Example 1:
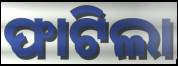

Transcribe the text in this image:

ଫାଟିଲା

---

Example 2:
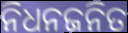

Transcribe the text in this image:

ନିଧନଜନିତ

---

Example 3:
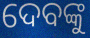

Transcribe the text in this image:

ଦେବଙ୍କୁ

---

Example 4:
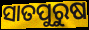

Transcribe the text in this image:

ସାତପୁରୁଷ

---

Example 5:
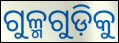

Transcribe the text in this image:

ଗୁଳ୍ମଗୁଡ଼ିକୁ